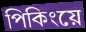
পিকিংয়ে